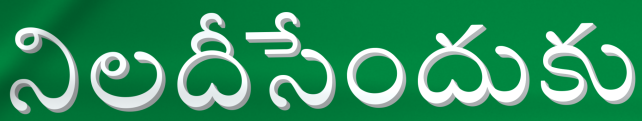
నిలదీసేందుకు